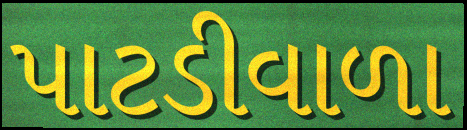
પાટડીવાળા